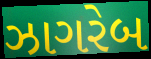
ઝાગરેબ